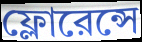
ফ্লোরেন্সে